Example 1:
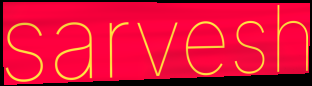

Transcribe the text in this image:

sarvesh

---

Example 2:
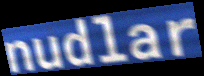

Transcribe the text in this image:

nudlar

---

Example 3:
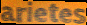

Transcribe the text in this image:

arietes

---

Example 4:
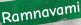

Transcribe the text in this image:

Ramnavami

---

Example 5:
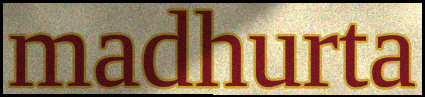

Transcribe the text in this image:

madhurta